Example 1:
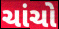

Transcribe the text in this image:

ચાંચો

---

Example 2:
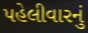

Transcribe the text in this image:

પહેલીવારનું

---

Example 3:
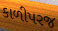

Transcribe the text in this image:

કાળીપરજ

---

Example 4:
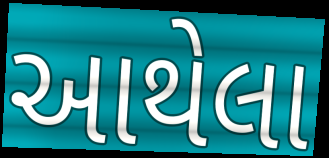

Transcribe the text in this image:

આથેલા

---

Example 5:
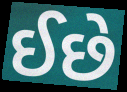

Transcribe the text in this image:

ઈછે